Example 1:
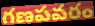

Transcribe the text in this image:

గణపవరం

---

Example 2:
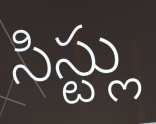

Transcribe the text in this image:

సిస్ట్లు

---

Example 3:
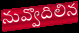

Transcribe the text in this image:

నువ్వొదిలిన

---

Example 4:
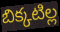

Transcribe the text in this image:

బిక్కటిల్ల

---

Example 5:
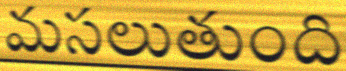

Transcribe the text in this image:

మసలుతుంది